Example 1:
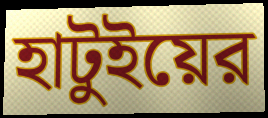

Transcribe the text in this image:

হাটুইয়ের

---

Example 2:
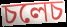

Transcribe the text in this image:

চলেচ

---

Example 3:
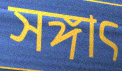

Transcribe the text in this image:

সঙ্গাৎ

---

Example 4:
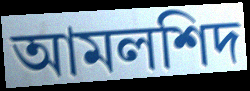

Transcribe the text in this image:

আমলশিদ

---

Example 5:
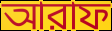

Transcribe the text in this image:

আরাফ